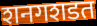
शनगशडत